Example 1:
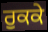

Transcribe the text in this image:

ਰੁਕਕੇ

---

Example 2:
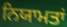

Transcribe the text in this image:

ਨਿਯਾਮਤਾਂ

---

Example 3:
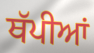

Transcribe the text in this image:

ਥੱਪੀਆਂ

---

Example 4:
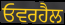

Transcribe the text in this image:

ਓਵਰਹੈਲ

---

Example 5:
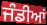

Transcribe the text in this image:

ਜੰਡੀਆਂ